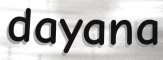
dayana